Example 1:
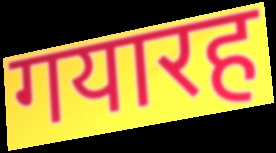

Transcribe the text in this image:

गयारह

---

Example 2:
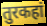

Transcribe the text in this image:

तुरकहां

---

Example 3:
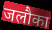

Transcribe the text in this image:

जलौका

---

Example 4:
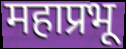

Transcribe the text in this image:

महाप्रभू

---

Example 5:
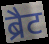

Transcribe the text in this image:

ब्रैट